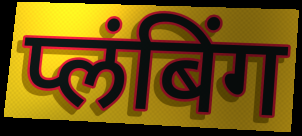
प्लंबिंग